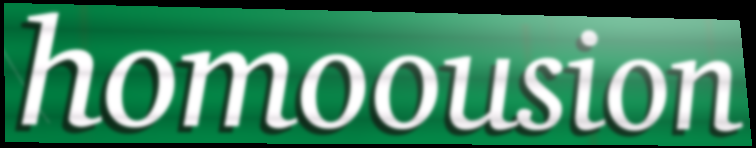
homoousion